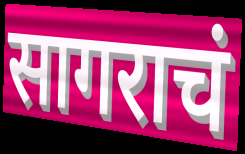
सागराचं